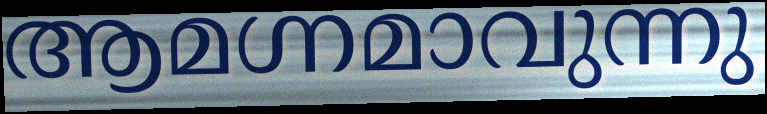
ആമഗ്നമാവുന്നു